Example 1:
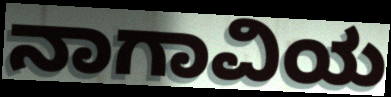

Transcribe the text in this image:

ನಾಗಾವಿಯ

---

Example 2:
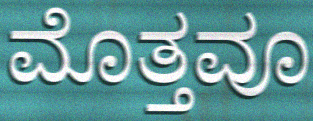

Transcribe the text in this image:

ಮೊತ್ತವೂ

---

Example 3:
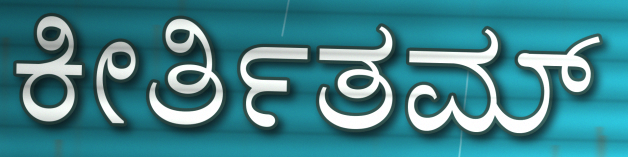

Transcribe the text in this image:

ಕೀರ್ತಿತಮ್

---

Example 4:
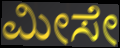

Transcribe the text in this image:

ಮೀಸೇ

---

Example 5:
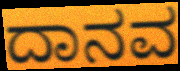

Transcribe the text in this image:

ದಾನವ